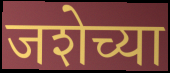
जशेच्या